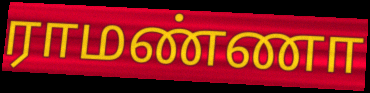
ராமண்ணா